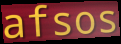
afsos